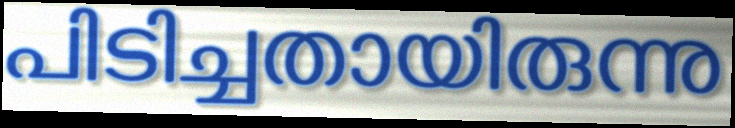
പിടിച്ചതായിരുന്നു